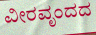
ವೀರವೃಂದದ